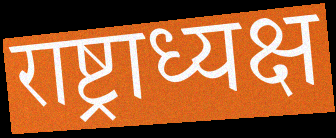
राष्ट्राध्यक्ष